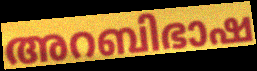
അറബിഭാഷ